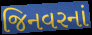
જિનવરનાં